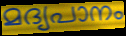
മദ്യപാനം